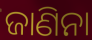
ଜାଣିନା